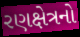
રણક્ષેત્રનો